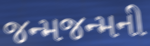
જન્મજન્મની